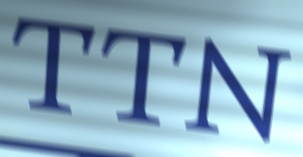
TTN